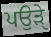
ਪਉੜੑੇ